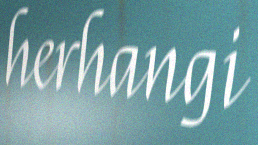
herhangi